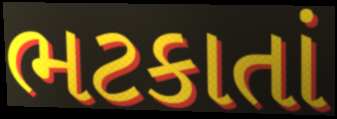
ભટકાતાં